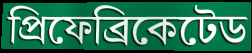
প্রিফেব্রিকেটেড